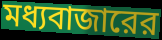
মধ্যবাজারের